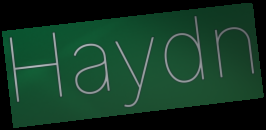
Haydn